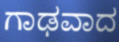
ಗಾಢವಾದ